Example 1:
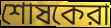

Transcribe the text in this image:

শোষকেরা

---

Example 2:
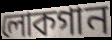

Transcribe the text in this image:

লোকগান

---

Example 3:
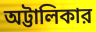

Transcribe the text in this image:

অট্টালিকার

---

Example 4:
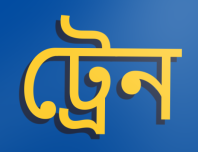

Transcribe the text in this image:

ট্রেন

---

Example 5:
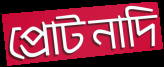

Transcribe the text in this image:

প্রোটনাদি